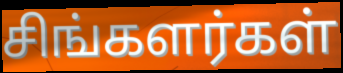
சிங்களர்கள்